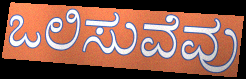
ಒಲಿಸುವೆವು